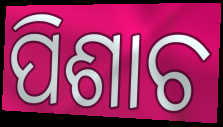
ପିଶାଚ